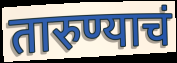
तारुण्याचं